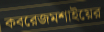
কবরেজমশাইয়ের